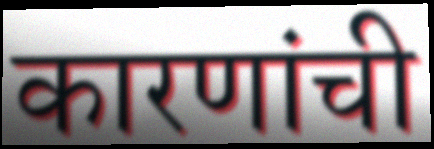
कारणांची